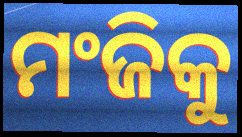
ମଂଜିକୁ